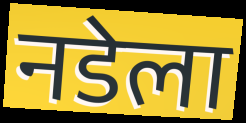
नडेला